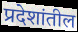
प्रदेशांतील